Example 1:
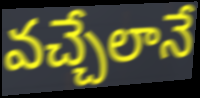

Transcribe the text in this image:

వచ్చేలానే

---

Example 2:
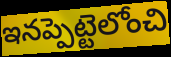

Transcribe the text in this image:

ఇనప్పెట్టెలోంచి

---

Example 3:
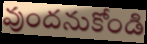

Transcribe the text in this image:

వుందనుకోండి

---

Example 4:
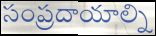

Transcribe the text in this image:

సంప్రదాయాల్ని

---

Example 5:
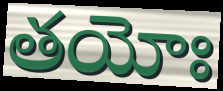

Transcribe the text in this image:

తయోః